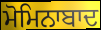
ਮੋਮਿਨਾਬਾਦ